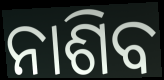
ନାଶିବ